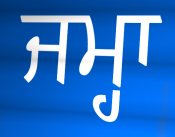
ਜਮ੍ਹਾ